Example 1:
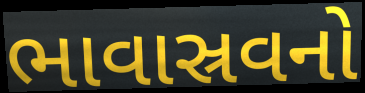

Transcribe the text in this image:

ભાવાસ્રવનો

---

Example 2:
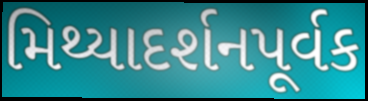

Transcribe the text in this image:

મિથ્યાદર્શનપૂર્વક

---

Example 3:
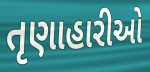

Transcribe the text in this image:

તૃણાહારીઓ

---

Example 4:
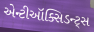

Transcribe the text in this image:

એન્ટીઑક્સિડન્ટ્સ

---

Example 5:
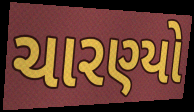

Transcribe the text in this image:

ચારણ્યો